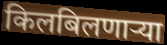
किलबिलणाऱ्या